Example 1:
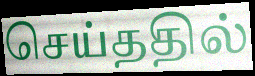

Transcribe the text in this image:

செய்ததில்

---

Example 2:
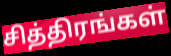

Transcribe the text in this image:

சித்திரங்கள்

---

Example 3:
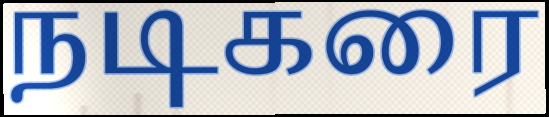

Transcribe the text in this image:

நடிகரை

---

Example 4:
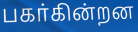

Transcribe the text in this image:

பகர்கின்றன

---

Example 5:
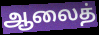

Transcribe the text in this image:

ஆலைத்